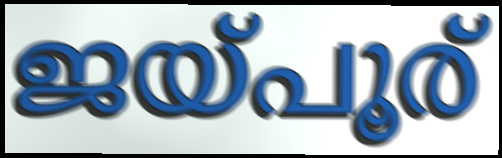
ജയ്പൂര്